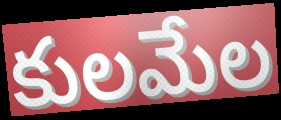
కులమేల